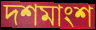
দশমাংশ